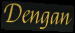
Dengan